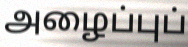
அழைப்புப்